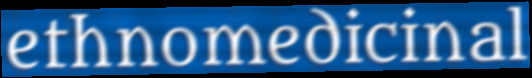
ethnomedicinal